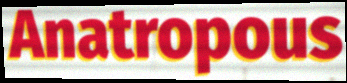
Anatropous